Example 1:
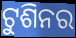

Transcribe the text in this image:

ଟୁଶିନର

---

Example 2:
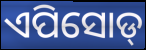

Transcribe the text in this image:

ଏପିସୋଡ୍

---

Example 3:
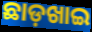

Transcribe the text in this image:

ଛାଡ଼ଖାଇ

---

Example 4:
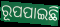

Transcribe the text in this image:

ରୂପପାଇଛି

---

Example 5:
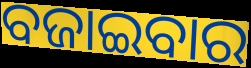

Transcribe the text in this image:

ବଜାଇବାର